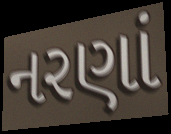
નરણાં